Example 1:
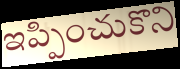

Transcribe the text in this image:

ఇప్పించుకొని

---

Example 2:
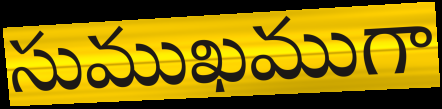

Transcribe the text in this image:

సుముఖముగా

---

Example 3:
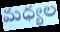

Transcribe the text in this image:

మధ్యల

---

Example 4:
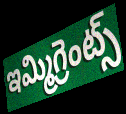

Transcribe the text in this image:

ఇమ్మిగ్రెంట్స్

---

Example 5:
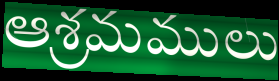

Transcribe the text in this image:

ఆశ్రమములు